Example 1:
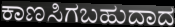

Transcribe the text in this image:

ಕಾಣಸಿಗಬಹುದಾದ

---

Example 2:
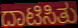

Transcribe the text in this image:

ದಾಟಿಸಿತು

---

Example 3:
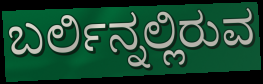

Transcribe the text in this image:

ಬರ್ಲಿನ್ನಲ್ಲಿರುವ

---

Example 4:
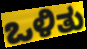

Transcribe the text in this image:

ಒಳಿತು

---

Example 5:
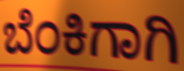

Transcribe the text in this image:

ಬೆಂಕಿಗಾಗಿ